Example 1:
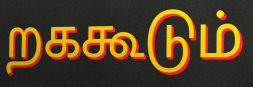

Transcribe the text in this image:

றககூடும்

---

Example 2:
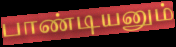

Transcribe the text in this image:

பாண்டியனும்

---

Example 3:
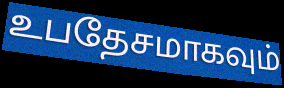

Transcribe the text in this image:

உபதேசமாகவும்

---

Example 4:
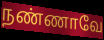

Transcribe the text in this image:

நண்ணாவே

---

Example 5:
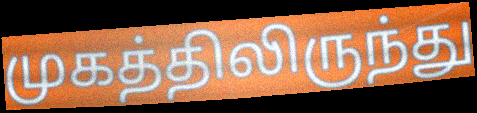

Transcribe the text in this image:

முகத்திலிருந்து